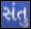
સંતુ